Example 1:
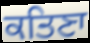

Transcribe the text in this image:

ਕਤਿਣਾ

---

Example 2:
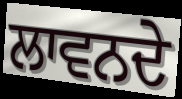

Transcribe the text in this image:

ਲਾਵਨਦੇ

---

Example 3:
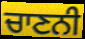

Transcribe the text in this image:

ਚਾਣਨੀ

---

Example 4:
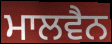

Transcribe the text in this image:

ਮਾਲਵੈਨ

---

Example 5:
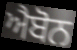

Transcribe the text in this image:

ਐਬੋਨ